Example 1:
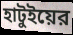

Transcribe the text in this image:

হাটুইয়ের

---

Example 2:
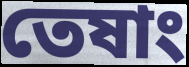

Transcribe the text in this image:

তেষাং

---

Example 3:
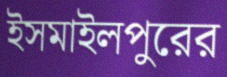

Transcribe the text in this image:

ইসমাইলপুরের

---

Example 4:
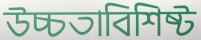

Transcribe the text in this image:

উচ্চতাবিশিষ্ট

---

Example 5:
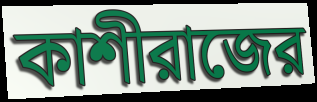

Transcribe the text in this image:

কাশীরাজের